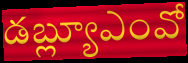
డబ్ల్యూఎంవో